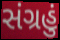
સંગ્રહું